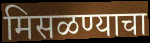
मिसळण्याचा